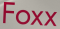
Foxx